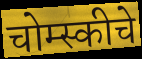
चोम्स्कीचे